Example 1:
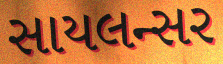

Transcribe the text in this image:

સાયલન્સર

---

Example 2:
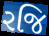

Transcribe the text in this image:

રજિ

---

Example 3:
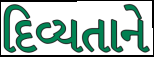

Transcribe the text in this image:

દિવ્યતાને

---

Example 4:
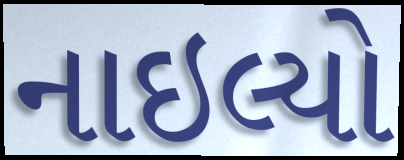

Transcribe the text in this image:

નાઇલ્યો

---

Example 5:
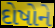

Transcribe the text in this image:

દોષોને